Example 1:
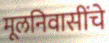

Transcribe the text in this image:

मूलनिवासींचे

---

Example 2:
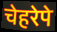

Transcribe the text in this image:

चेहरेपे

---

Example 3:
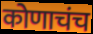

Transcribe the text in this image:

कोणाचंच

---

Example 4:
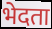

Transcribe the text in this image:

भेदता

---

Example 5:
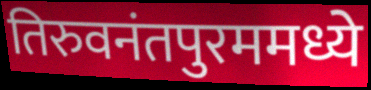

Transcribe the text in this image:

तिरुवनंतपुरममध्ये